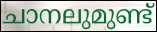
ചാനലുമുണ്ട്